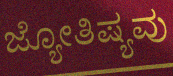
ಜ್ಯೋತಿಷ್ಯವು